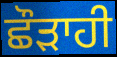
ਛੌੜਾਹੀ